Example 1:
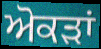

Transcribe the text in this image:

ਅੋਕੜਾਂ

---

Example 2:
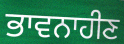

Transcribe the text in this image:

ਭਾਵਨਾਹੀਣ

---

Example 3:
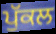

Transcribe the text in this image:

ਪੁੱਕਲ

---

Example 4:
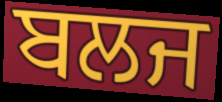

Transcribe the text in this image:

ਬਲਜ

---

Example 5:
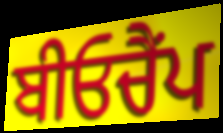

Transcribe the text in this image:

ਬੀਓਚੈਂਪ